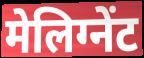
मेलिग्नेंट